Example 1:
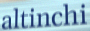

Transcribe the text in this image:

altinchi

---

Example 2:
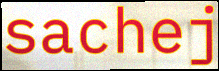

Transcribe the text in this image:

sachej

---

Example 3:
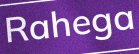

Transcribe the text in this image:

Rahega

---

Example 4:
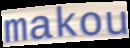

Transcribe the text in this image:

makou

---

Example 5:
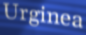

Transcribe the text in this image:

Urginea